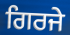
ਗਿਰਜੇ